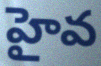
హైవ